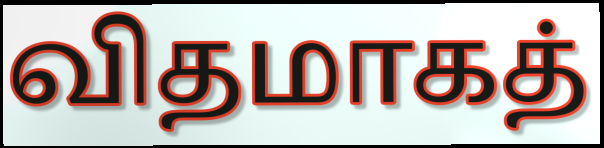
விதமாகத்